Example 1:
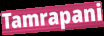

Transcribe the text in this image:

Tamrapani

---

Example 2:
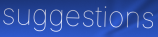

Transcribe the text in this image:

suggestions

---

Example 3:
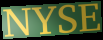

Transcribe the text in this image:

NYSE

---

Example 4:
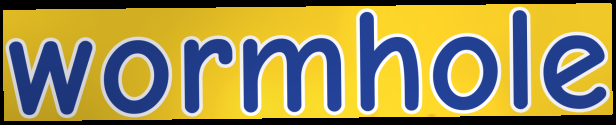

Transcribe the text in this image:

wormhole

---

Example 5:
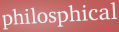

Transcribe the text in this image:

philosphical